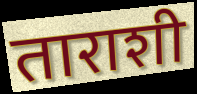
ताराशी